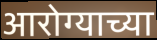
आरोग्याच्या